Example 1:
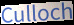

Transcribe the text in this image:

Culloch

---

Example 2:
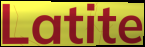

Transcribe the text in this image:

Latite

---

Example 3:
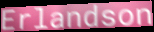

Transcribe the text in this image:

Erlandson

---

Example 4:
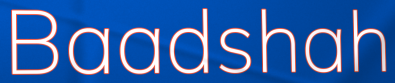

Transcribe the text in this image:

Baadshah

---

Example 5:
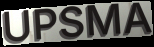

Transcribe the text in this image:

UPSMA